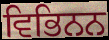
ਵਿਭਿਨਨ